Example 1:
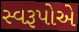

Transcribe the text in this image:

સ્વરૂપોએ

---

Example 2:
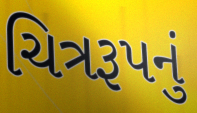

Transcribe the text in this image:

ચિત્રરૂપનું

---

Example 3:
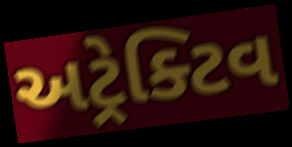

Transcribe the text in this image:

અટ્રેક્ટિવ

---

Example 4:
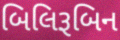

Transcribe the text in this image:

બિલિરૂબિન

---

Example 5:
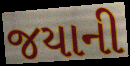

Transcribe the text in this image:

જયાની